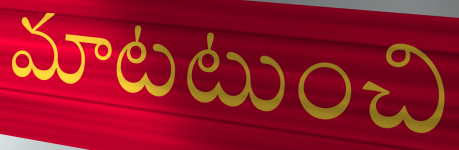
మాటటుంచి